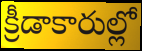
క్రీడాకారుల్లో